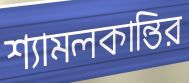
শ্যামলকান্তির